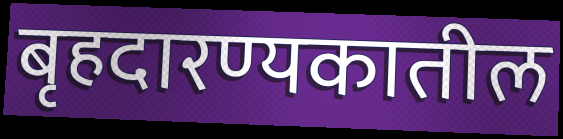
बृहदारण्यकातील